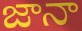
జానా